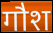
गौश